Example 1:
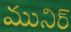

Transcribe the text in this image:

మునిర్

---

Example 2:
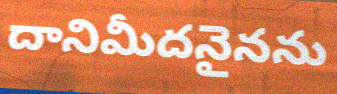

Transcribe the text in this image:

దానిమీదనైనను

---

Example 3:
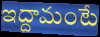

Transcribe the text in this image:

ఇద్దామంటే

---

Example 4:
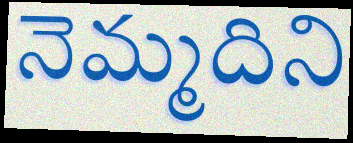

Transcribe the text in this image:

నెమ్మదిని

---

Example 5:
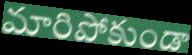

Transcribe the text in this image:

మారిపోకుండా